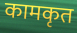
कामकृत